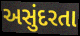
અસુંદરતા